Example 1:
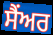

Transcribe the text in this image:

ਸੈਂਅਰ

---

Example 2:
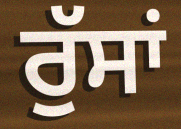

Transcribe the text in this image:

ਰੁੱਸਾਂ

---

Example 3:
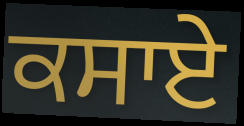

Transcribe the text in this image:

ਕਸਾਏ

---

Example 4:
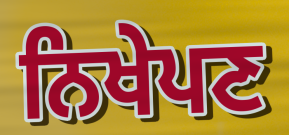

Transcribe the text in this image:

ਨਿਖੇਪਣ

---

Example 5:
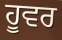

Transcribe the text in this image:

ਹੂਵਰ